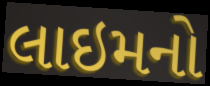
લાઇમનો